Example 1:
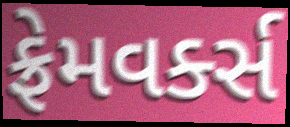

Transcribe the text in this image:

ફ્રેમવર્ક્સ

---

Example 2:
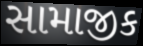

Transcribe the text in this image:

સામાજીક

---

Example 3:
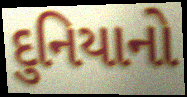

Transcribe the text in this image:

દુનિયાનો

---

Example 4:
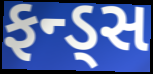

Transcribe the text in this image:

ફન્ડ્સ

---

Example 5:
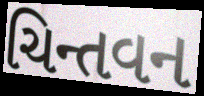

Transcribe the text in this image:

ચિન્તવન